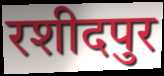
रशीदपुर